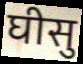
घीसु